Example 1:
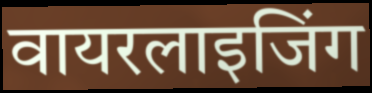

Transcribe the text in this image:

वायरलाइजिंग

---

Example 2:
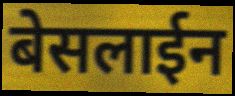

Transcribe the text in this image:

बेसलाईन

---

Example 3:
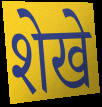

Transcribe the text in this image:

शेखे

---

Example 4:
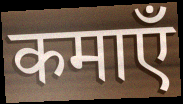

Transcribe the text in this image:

कमाएँ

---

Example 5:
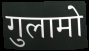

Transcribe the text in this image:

गुलामो